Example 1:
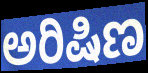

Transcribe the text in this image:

ಅರಿಷಿಣ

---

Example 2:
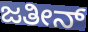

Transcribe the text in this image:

ಜತೀನ್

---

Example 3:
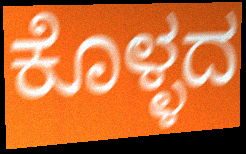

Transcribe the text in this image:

ಕೊಳ್ಳದ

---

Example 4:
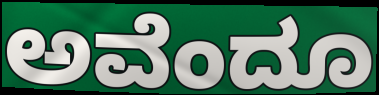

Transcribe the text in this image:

ಅವೆಂದೂ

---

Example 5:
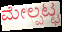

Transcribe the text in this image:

ಮೇಲ್ಪಟ್ಟ